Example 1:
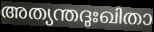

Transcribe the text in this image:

അത്യന്തദുഃഖിതാ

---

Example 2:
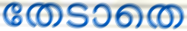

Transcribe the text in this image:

തേടാതെ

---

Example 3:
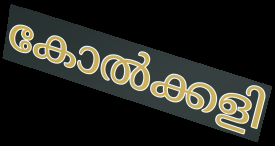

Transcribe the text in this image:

കോൽക്കളി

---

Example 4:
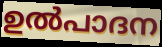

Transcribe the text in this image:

ഉൽപാദന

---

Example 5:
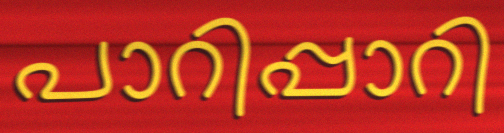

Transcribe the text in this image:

പാറിപ്പാറി